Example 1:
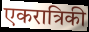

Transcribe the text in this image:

एकरात्रिकी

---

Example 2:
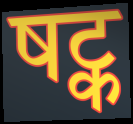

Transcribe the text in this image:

षट्क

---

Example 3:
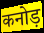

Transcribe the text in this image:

कनोड़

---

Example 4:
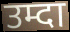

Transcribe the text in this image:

उम्दा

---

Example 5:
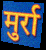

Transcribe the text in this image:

मुर्रा